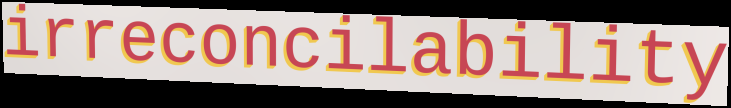
irreconcilability